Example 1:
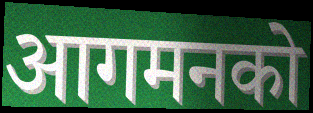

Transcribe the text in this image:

आगमनको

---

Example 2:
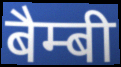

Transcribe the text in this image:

बैम्बी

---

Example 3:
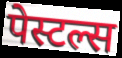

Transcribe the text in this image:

पेस्टल्स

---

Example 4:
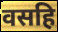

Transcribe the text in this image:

वसहि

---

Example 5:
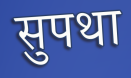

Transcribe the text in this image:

सुपथा